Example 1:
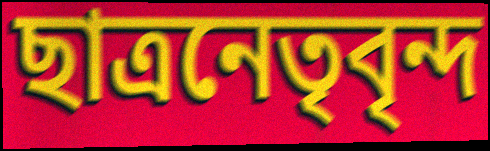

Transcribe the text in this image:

ছাত্রনেতৃবৃন্দ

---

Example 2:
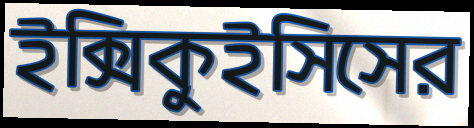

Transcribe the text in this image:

ইক্সিকুইসিসের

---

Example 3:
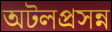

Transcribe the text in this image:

অটলপ্রসন্ন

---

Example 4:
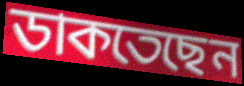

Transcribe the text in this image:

ডাকতেছেন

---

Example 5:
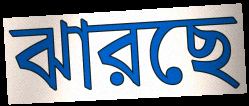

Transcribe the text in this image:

ঝারছে